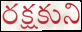
రక్షకుని